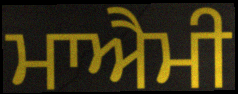
ਮਾਐਮੀ